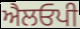
ਐਲਓਪੀ